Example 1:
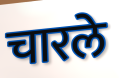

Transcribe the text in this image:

चारले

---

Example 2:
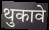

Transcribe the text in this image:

थुकावे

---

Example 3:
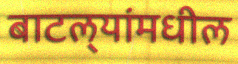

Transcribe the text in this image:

बाटल्यांमधील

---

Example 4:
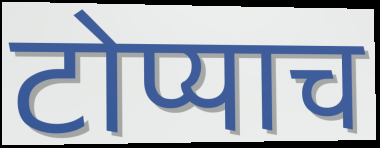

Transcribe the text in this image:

टोप्याच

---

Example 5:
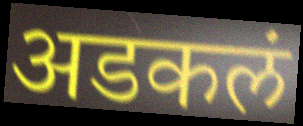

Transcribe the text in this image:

अडकलं